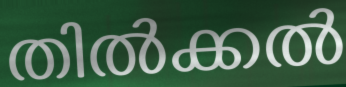
തിൽക്കൽ